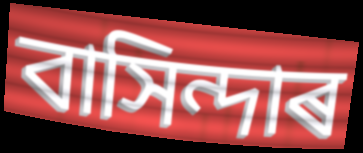
বাসিন্দাৰ